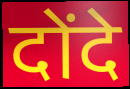
दोंदे